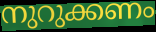
നുറുക്കണം